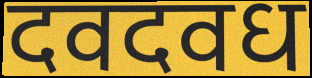
दवदवध